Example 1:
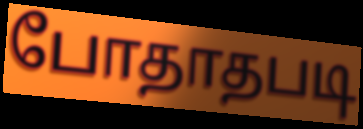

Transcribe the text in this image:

போதாதபடி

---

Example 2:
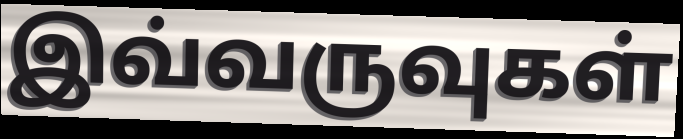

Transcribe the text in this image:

இவ்வருவுகள்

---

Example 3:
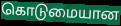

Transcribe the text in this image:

கொடுமையான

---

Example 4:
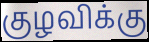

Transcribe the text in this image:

குழவிக்கு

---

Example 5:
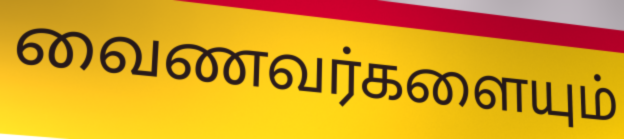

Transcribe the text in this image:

வைணவர்களையும்